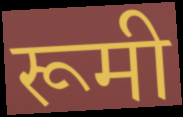
रूमी